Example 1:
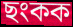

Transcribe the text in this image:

ছংকক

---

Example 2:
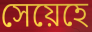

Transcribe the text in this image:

সেয়েহে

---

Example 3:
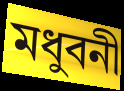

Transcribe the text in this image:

মধুবনী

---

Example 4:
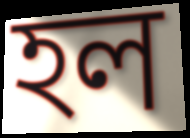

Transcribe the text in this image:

হল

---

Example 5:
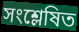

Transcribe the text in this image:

সংশ্লেষিত